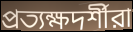
প্রত্যক্ষদর্শীরা